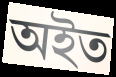
অইত